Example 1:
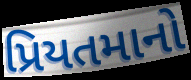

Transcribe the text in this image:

પ્રિયતમાનો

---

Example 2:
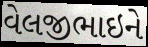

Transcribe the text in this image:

વેલજીભાઇને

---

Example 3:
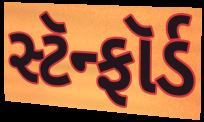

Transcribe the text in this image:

સ્ટૅન્ફૉર્ડ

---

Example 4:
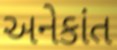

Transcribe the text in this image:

અનેકાંત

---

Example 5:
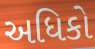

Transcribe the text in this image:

અધિકો